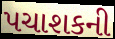
પચાશકની